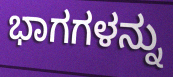
ಭಾಗಗಳನ್ನು